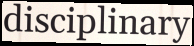
disciplinary